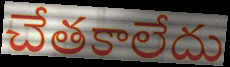
చేతకాలేదు